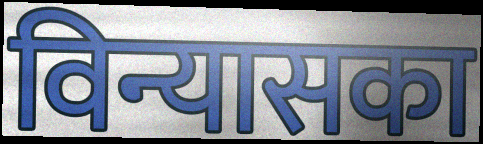
विन्यासका